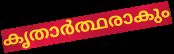
കൃതാർത്ഥരാകും